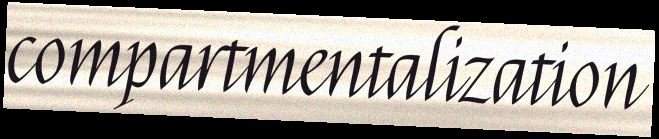
compartmentalization